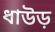
ধাউড়